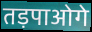
तड़पाओगे